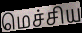
மெச்சிய